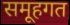
समूहगत